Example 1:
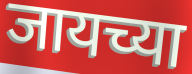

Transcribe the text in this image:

जायच्या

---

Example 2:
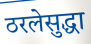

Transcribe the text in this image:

ठरलेसुद्धा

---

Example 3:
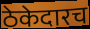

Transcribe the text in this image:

ठेकेदारच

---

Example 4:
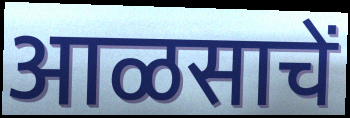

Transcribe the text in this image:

आळसाचें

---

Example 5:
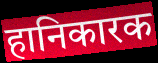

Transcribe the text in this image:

हानिकारक